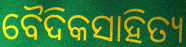
ବୈଦିକସାହିତ୍ୟ